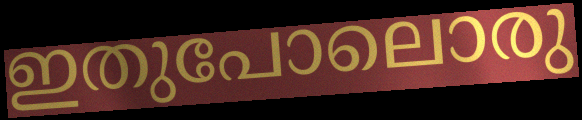
ഇതുപോലൊരു